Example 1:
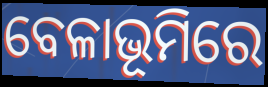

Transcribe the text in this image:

ବେଳାଭୂମିରେ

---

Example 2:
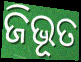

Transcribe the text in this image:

ଜିଭୂତ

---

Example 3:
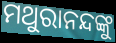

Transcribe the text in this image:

ମଥୁରାନନ୍ଦଙ୍କୁ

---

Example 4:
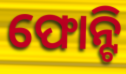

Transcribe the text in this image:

ଫୋନ୍ଟି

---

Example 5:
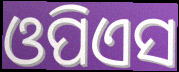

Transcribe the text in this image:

ଓପିଏସ